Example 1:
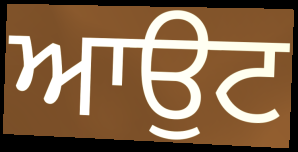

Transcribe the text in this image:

ਆਉਟ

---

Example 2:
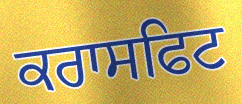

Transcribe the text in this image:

ਕਰਾਸਫਿਟ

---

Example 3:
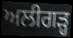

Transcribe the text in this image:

ਅਲੀਗੜ੍ਹ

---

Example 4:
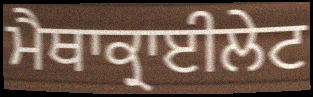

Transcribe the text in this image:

ਮੈਥਾਕ੍ਰਾਈਲੇਟ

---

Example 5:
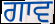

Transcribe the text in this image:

ਗਾਵ